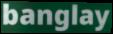
banglay